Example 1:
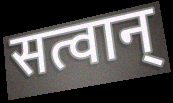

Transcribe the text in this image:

सत्वान्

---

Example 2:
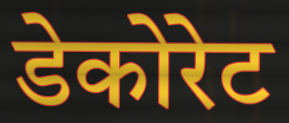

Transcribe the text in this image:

डेकोरेट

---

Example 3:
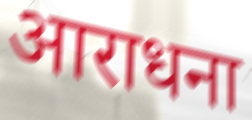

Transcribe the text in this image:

आराधना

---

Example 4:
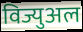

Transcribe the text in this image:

विज्युअल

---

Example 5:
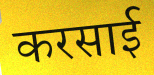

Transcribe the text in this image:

करसाई